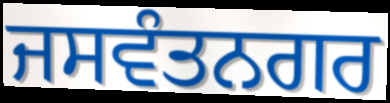
ਜਸਵੰਤਨਗਰ